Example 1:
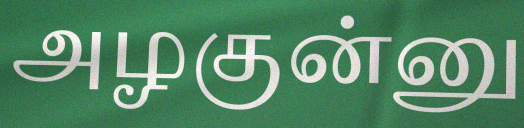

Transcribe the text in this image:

அழகுன்னு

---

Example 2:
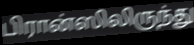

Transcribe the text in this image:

பிரான்ஸிலிருந்து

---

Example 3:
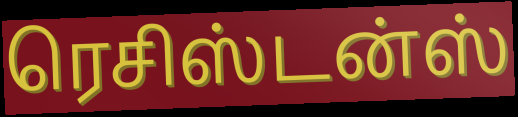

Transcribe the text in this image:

ரெசிஸ்டன்ஸ்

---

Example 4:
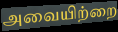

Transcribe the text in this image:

அவையிற்றை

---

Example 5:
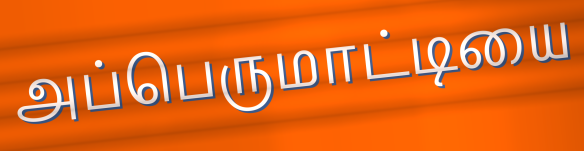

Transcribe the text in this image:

அப்பெருமாட்டியை